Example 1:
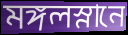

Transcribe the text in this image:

মঙ্গলস্নানে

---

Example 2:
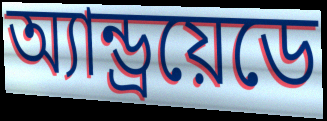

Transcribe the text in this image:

অ্যান্ড্রয়েডে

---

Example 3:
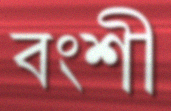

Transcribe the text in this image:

বংশী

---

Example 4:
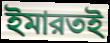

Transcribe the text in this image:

ইমারতই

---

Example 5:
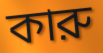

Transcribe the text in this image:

কারু